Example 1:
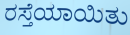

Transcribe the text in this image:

ರಸ್ತೆಯಾಯಿತು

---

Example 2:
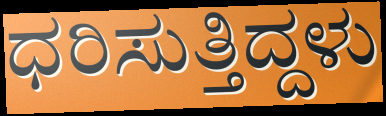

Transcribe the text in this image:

ಧರಿಸುತ್ತಿದ್ದಳು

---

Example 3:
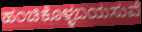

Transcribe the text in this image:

ಹಂಚಿಕೊಳ್ಳಬಯಸುವೆ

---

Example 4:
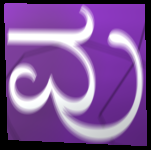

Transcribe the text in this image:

ವು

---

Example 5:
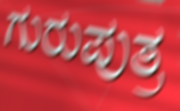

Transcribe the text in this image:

ಗುರುಪುತ್ರ